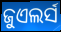
ଜୁଏଲର୍ସ